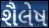
શૈલેષ